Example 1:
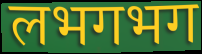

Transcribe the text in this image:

लभगभग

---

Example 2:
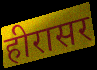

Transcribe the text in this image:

हीरासर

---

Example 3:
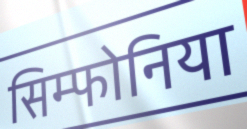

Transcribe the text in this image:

सिम्फोनिया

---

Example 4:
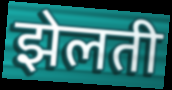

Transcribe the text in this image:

झेलती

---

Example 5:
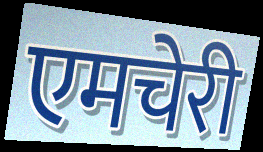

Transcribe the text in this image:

एमचेरी